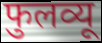
फुलव्यू